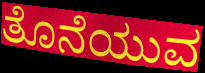
ತೊನೆಯುವ